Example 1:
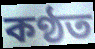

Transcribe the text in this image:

কণ্ঠত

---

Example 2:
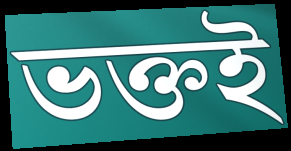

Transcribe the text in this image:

ভক্তই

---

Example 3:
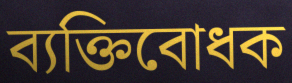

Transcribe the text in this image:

ব্যক্তিবোধক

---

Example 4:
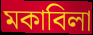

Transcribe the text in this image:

মকাবিলা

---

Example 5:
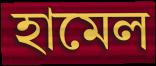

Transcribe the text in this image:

হামেল